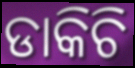
ଡାକିଚି